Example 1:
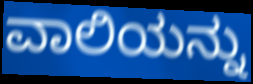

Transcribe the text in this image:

ವಾಲಿಯನ್ನು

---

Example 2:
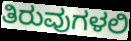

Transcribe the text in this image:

ತಿರುವುಗಳಲಿ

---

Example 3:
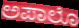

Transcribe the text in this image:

ಅಪಾಲೊ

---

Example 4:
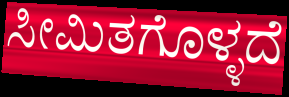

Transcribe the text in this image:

ಸೀಮಿತಗೊಳ್ಳದೆ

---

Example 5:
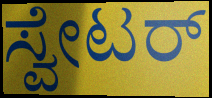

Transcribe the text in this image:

ಸ್ವೇಟರ್